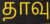
தாவு